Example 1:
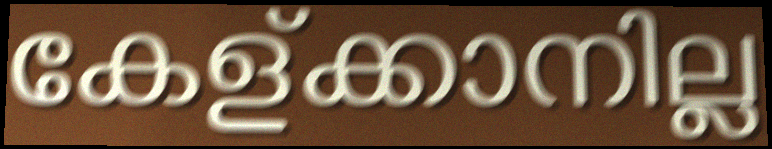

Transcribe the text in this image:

കേള്ക്കാനില്ല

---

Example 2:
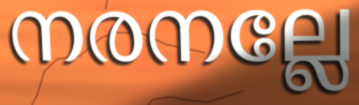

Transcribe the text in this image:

നരനല്ലേ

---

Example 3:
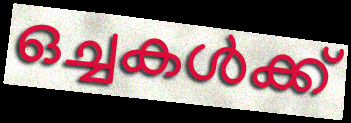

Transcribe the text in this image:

ഒച്ചകൾക്ക്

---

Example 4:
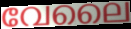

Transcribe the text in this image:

വേലൈ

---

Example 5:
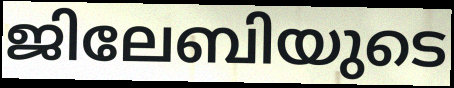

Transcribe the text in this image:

ജിലേബിയുടെ